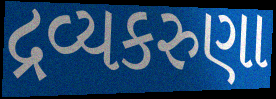
દ્રવ્યકરુણા